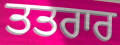
ਤਤਰਾਰ